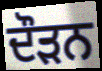
ਦੌਡ਼ਨ